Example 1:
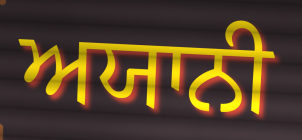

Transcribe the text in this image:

ਅਯਾਨੀ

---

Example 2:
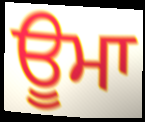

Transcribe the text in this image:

ਊਮਾ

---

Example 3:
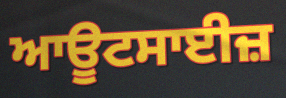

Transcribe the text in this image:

ਆਊਟਸਾਈਜ਼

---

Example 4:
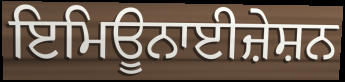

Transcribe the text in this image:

ਇਮਿਊਨਾਈਜ਼ੇਸ਼ਨ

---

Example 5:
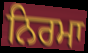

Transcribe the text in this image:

ਨਿਰਮਾ